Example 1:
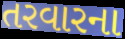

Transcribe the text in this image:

તરવારના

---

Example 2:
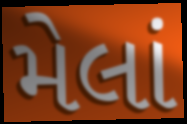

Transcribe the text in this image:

મેલાં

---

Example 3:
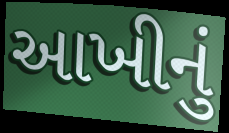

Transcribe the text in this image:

આખીનું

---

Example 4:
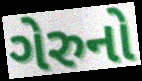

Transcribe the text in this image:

ગેરુનો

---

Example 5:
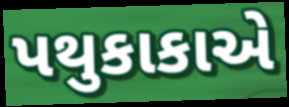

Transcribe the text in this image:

પથુકાકાએ